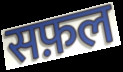
सफ़ल